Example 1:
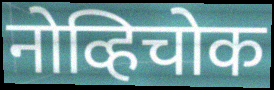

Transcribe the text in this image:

नोव्हिचोक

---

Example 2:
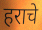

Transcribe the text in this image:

हराचे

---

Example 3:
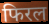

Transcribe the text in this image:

फिरल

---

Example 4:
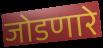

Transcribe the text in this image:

जोडणारे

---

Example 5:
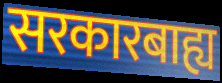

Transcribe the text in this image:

सरकारबाह्य